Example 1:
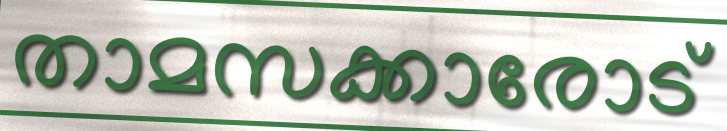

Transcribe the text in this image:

താമസക്കാരോട്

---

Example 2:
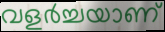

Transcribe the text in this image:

വളർച്ചയാണ്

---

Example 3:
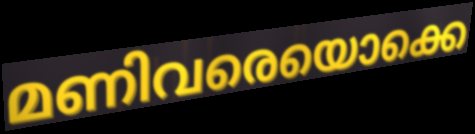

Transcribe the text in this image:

മണിവരെയൊക്കെ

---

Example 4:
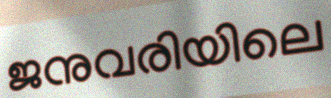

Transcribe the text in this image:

ജനുവരിയിലെ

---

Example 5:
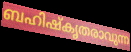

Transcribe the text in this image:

ബഹിഷ്കൃതരാവുന്ന